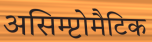
असिम्प्टोमैटिक